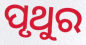
ପୃଥୁର